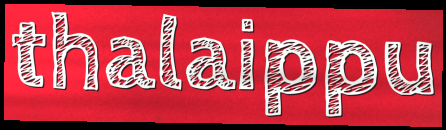
thalaippu